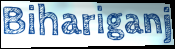
Bihariganj